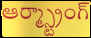
ఆర్మ్స్ట్రాంగ్